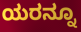
ಯರನ್ನೂ